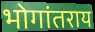
भोगांतराय